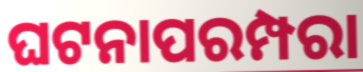
ଘଟନାପରମ୍ପରା